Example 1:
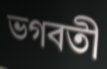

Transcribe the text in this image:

ভগবতী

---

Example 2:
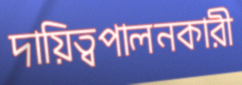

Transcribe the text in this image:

দায়িত্বপালনকারী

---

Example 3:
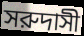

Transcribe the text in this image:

সরুদাসী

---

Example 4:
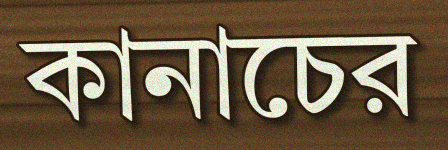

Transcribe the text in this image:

কানাচের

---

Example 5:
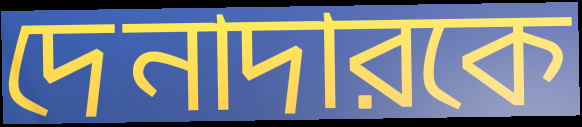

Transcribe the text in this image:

দেনাদারকে